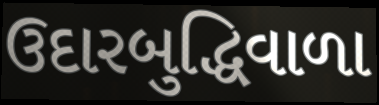
ઉદારબુદ્ધિવાળા